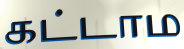
கட்டாம